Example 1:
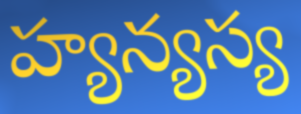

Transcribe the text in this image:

హ్యన్యస్య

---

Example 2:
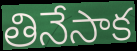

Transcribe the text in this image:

తినేసాక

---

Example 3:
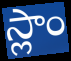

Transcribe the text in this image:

స్లాం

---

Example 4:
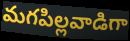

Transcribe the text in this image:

మగపిల్లవాడిగా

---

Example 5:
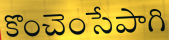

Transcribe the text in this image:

కొంచెంసేపాగి